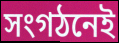
সংগঠনেই